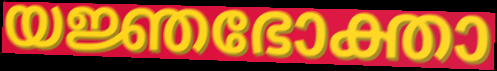
യജ്ഞഭോക്താ